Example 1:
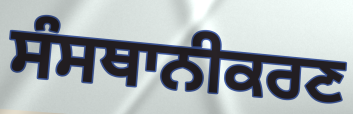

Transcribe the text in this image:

ਸੰਸਥਾਨੀਕਰਣ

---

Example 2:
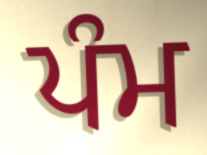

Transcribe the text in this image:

ਪੰਮ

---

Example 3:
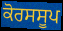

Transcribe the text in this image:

ਕੋਰਸਸੂਪ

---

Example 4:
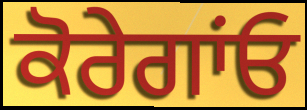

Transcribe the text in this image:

ਕੋਰੇਗਾਂਓ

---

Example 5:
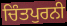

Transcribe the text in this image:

ਚਿੰਤਪੁਰਨੀ